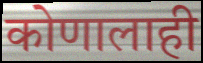
कोणालाही